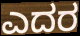
ಎದರ